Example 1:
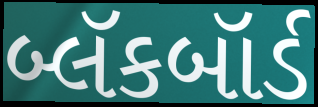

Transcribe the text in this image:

બ્લૅકબૉર્ડ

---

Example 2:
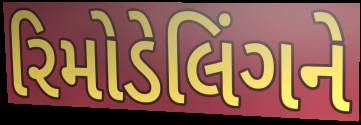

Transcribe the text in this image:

રિમોડેલિંગને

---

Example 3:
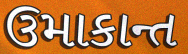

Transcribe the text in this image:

ઉમાકાન્ત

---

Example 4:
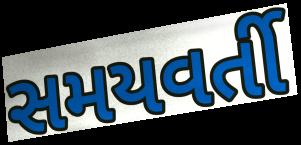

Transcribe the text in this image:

સમયવર્તી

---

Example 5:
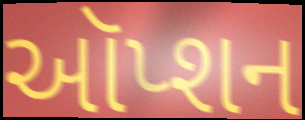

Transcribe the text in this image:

ઑપ્શન